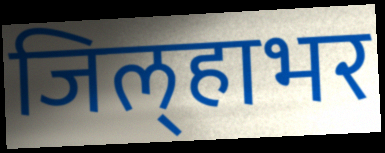
जिल्हाभर